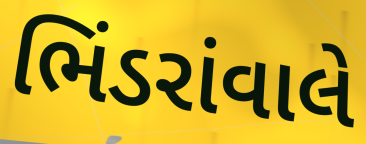
ભિંડરાંવાલે